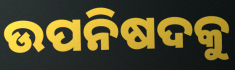
ଉପନିଷଦକୁ